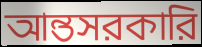
আন্তসরকারি